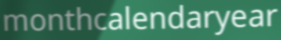
monthcalendaryear